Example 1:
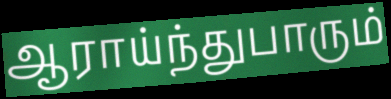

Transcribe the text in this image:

ஆராய்ந்துபாரும்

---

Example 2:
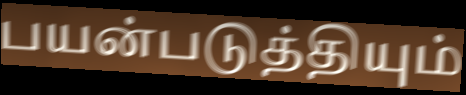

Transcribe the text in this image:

பயன்படுத்தியும்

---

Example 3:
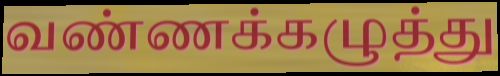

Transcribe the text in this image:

வண்ணக்கழுத்து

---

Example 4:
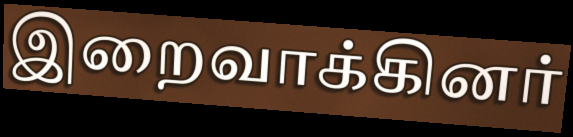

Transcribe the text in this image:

இறைவாக்கினர்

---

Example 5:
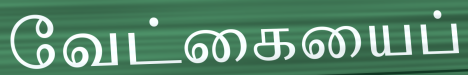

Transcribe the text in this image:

வேட்கையைப்